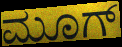
ಮೂಗ್